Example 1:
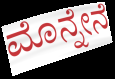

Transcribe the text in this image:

ಮೊನ್ನೇನೆ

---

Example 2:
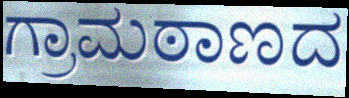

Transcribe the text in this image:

ಗ್ರಾಮಠಾಣದ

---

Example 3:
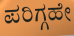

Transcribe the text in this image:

ಪರಿಗ್ಗಹೇ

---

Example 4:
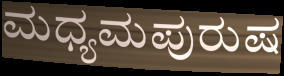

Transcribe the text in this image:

ಮಧ್ಯಮಪುರುಷ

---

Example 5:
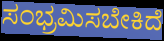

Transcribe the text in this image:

ಸಂಭ್ರಮಿಸಬೇಕಿದೆ